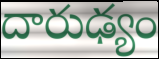
దారుఢ్యం